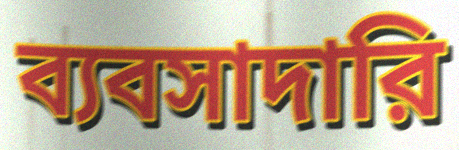
ব্যবসাদারি